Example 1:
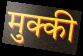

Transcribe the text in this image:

मुक्की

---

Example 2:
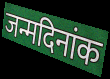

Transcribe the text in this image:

जन्मदिनांक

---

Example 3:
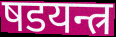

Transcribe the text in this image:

षडयन्त्र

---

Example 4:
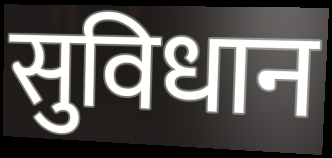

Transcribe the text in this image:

सुविधान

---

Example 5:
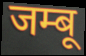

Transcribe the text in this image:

जम्बू